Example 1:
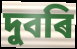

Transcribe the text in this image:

দুবৰি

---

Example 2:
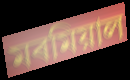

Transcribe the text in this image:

মৰমিয়াল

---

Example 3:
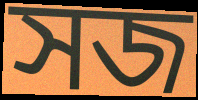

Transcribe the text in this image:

সজ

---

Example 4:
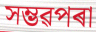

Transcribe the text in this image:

সম্ভৱপৰা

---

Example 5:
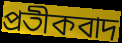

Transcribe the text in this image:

প্ৰতীকবাদ